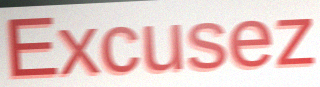
Excusez